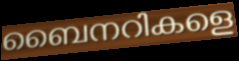
ബൈനറികളെ